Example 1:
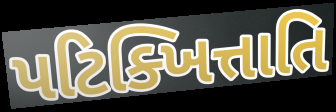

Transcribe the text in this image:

પટિક્ખિત્તાતિ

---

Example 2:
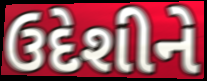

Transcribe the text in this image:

ઉદેશીને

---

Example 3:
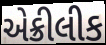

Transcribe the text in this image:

એક્રીલીક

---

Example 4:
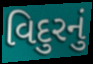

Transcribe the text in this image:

વિદુરનું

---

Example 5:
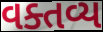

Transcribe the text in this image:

વક્તવ્ય